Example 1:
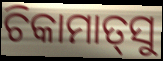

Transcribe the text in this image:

ଚିକାମାତ୍‌ସୁ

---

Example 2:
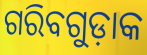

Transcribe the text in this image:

ଗରିବଗୁଡ଼ାକ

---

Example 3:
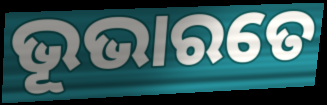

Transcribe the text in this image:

ଭୂଭାରତେ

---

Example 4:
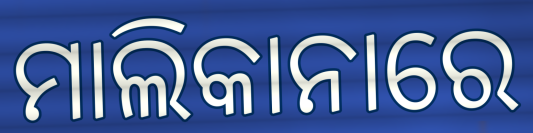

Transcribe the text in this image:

ମାଲିକାନାରେ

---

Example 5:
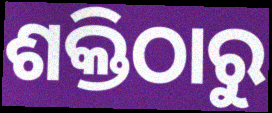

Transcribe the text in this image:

ଶକ୍ତିଠାରୁ